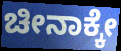
ಚೀನಾಕ್ಕೇ